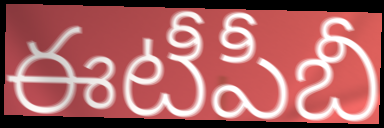
ఈటీపీబీ